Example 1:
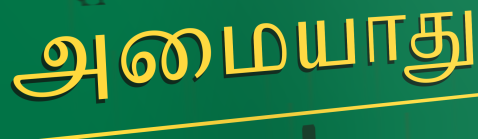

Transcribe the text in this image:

அமையாது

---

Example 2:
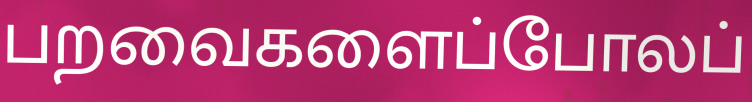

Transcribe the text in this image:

பறவைகளைப்போலப்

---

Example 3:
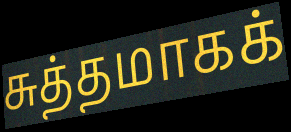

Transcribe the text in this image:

சுத்தமாகக்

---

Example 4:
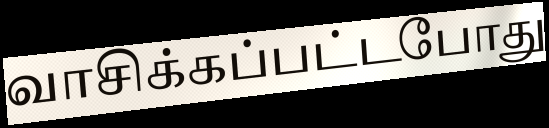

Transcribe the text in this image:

வாசிக்கப்பட்டபோது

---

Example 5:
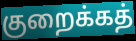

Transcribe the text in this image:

குறைக்கத்